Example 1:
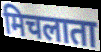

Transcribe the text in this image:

मिचलाता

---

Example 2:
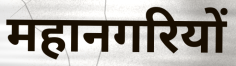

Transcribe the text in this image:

महानगरियों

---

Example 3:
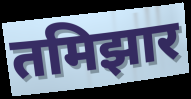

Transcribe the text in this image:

तमिझार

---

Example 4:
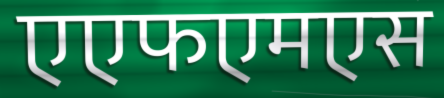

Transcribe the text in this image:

एएफएमएस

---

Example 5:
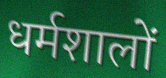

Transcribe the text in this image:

धर्मशालों